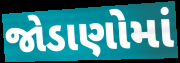
જોડાણોમાં